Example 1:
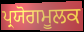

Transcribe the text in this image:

ਪ੍ਰਯੋਗਮੂਲਕ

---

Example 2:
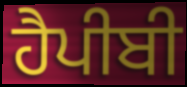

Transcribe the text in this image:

ਹੈਪੀਬੀ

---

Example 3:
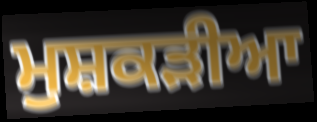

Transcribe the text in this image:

ਮੁਸ਼ਕੜੀਆ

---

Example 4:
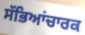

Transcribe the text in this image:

ਸੱਭਿਆਂਚਾਰਕ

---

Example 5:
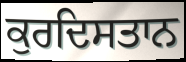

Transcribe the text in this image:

ਕੁਰਦਿਸਤਾਨ